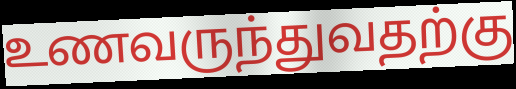
உணவருந்துவதற்கு